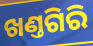
ଖଣ୍ତଗିରି